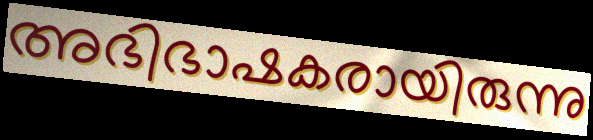
അഭിഭാഷകരായിരുന്നു